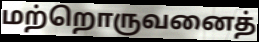
மற்றொருவனைத்